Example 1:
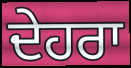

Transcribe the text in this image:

ਦੇਹਰਾ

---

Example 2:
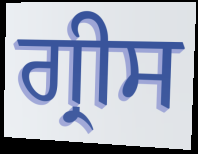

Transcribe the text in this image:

ਗ੍ਰੀਸ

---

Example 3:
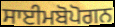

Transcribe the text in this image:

ਸਾਈਮਬੋਪੋਗਨ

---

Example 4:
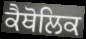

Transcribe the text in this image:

ਕੈਥੋਲਿਕ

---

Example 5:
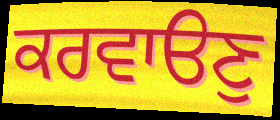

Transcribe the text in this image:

ਕਰਵਾੳਣੁ